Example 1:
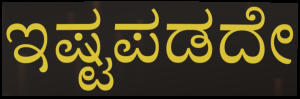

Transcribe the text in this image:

ಇಷ್ಟಪಡದೇ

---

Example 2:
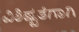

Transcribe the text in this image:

ವಿಶಿಷ್ಟತೆಗಾಗಿ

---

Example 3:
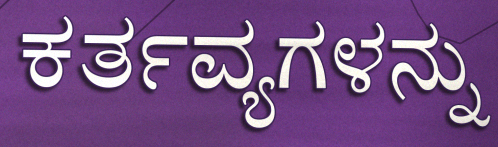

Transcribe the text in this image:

ಕರ್ತವ್ಯಗಳನ್ನು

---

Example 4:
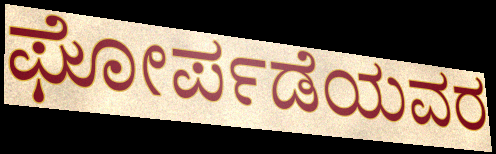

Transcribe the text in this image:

ಘೋರ್ಪಡೆಯವರ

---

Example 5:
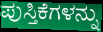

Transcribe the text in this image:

ಪುಸ್ತಿಕೆಗಳನ್ನು